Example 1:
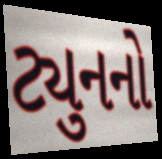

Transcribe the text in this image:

ટ્યુનનો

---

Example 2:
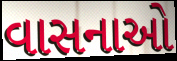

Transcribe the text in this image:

વાસનાઓ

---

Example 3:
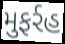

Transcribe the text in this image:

મુફર્રહ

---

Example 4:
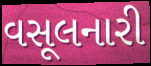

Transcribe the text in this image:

વસૂલનારી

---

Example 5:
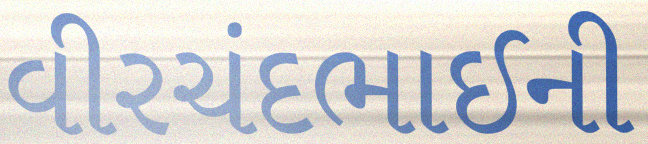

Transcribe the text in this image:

વીરચંદભાઈની